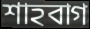
শাহবাগ